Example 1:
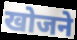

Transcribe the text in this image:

खोजने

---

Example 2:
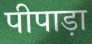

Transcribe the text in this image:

पीपाड़ा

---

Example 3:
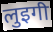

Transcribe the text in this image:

लुइगी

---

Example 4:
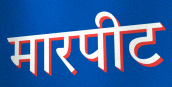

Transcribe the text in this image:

मारपीट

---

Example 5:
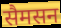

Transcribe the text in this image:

सैमसन